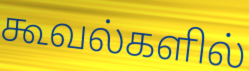
கூவல்களில்